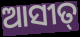
ଆସୀତ୍